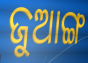
ଜୁଆଙ୍ଗ